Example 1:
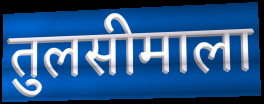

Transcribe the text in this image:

तुलसीमाला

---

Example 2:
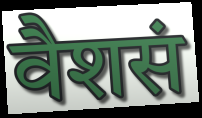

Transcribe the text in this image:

वैशसं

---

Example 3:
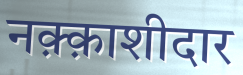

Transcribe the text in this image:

नक़्क़ाशीदार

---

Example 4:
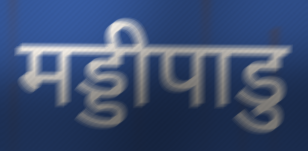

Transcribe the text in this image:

मड्डीपाडु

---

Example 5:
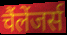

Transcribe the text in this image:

चैंलेंजर्स